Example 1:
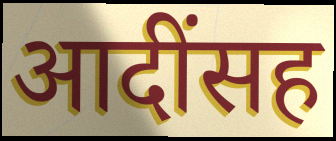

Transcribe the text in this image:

आदींसह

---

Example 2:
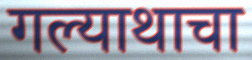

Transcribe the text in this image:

गल्याथाचा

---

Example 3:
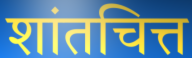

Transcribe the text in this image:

शांतचित्त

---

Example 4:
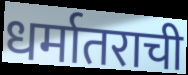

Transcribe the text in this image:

धर्मातराची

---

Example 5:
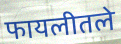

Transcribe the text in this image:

फायलीतले